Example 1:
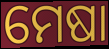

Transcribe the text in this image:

ମେଷା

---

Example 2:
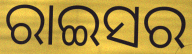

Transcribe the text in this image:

ରାଇସର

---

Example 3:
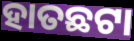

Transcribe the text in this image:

ହାତଛଟା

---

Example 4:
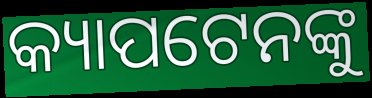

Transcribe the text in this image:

କ୍ୟାପଟେନଙ୍କୁ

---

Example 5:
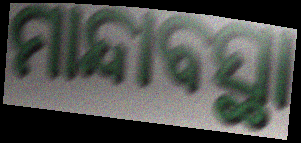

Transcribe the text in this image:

ମାନ୍ଦାବସ୍ଥା